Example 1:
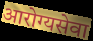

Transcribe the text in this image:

आरोग्यसेवा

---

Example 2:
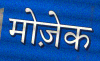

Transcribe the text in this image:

मोज़ेक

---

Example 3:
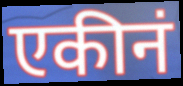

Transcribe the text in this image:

एकीनं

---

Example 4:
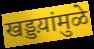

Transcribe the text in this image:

खड्डय़ांमुळे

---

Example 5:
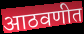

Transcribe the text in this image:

आठवणीत